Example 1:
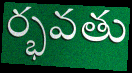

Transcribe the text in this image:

ర్భవతు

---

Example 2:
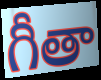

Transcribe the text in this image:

గీతా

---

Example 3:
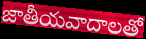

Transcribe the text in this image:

జాతీయవాదాలతో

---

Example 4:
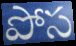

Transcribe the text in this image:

పోస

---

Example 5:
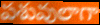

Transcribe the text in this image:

పశువులాగా